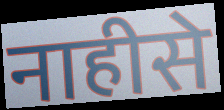
नाहीसे